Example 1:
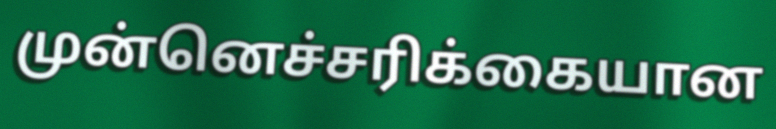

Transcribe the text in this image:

முன்னெச்சரிக்கையான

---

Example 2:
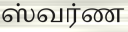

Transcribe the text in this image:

ஸ்வர்ண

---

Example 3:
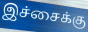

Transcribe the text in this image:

இச்சைக்கு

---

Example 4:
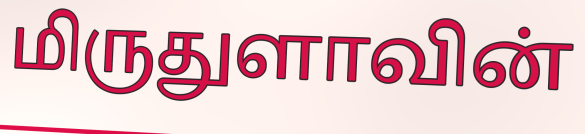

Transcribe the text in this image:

மிருதுளாவின்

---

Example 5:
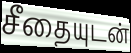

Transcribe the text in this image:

சீதையுடன்